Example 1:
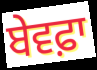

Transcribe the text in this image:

ਬੇਵਫ਼ਾ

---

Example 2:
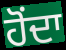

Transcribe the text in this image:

ਹੋਂਦਾ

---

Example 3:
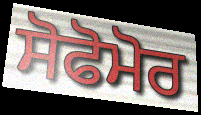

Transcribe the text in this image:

ਸੋਫੋਮੋਰ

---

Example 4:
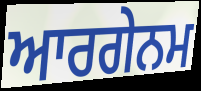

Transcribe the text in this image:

ਆਰਗੇਨਮ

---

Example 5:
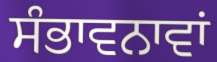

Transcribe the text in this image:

ਸੰਭਾਵਨਾਵਾਂ